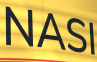
NASI